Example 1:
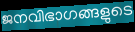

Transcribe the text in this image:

ജനവിഭാഗങ്ങളുടെ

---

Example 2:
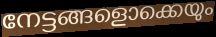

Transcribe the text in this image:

നേട്ടങ്ങളൊക്കെയും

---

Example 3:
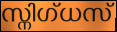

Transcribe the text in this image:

സ്നിഗ്ധസ്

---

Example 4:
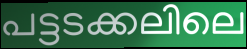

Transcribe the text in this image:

പട്ടടക്കലിലെ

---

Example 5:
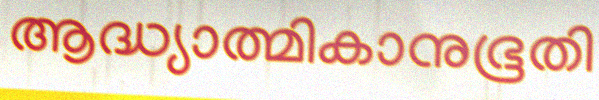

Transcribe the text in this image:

ആദ്ധ്യാത്മികാനുഭൂതി